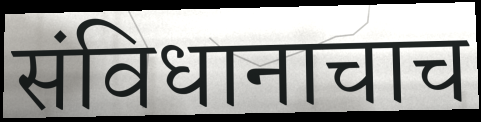
संविधानाचाच